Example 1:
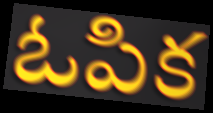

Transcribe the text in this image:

ఓపిక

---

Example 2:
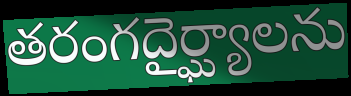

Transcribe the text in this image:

తరంగదైర్ఘ్యాలను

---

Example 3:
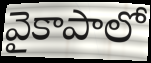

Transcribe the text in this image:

వైకాపాలో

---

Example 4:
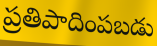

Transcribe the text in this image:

ప్రతిపాదింపబడు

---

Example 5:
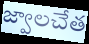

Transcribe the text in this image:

జ్వాలచేత